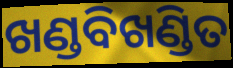
ଖଣ୍ଡବିଖଣ୍ଡିତ